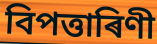
বিপত্তাৰিণী